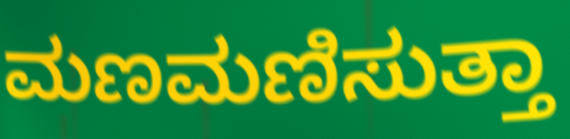
ಮಣಮಣಿಸುತ್ತಾ